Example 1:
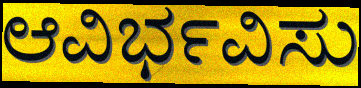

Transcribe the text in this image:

ಆವಿರ್ಭವಿಸು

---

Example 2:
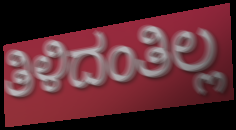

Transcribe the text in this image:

ತಿಳಿದಂತಿಲ್ಲ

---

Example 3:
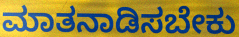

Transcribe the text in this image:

ಮಾತನಾಡಿಸಬೇಕು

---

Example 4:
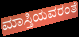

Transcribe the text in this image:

ಮಾಸ್ತಿಯವರಂತೆ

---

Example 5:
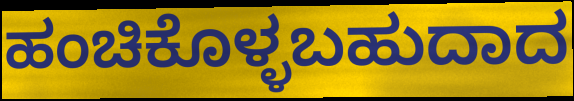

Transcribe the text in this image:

ಹಂಚಿಕೊಳ್ಳಬಹುದಾದ